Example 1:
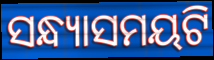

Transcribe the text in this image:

ସନ୍ଧ୍ୟାସମୟଟି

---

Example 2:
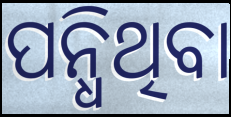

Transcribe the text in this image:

ପନ୍ଧିଥିବା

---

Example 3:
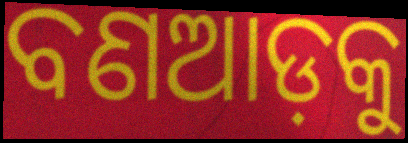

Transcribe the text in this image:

ବଣଆଡ଼କୁ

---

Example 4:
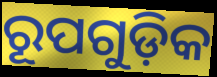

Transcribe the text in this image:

ରୂପଗୁଡ଼ିକ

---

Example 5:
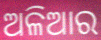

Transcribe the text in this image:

ଅଳିଆର